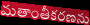
మతాంతీకరణను